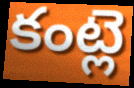
కంట్లె